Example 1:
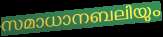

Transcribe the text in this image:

സമാധാനബലിയും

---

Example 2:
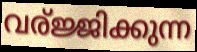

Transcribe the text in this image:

വര്ജ്ജിക്കുന്ന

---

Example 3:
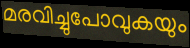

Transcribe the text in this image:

മരവിച്ചുപോവുകയും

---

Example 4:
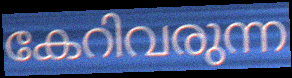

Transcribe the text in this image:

കേറിവരുന്ന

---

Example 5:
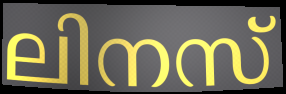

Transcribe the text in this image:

ലിനസ്